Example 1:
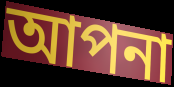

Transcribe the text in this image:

আপনা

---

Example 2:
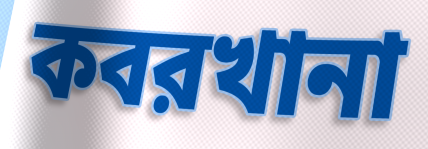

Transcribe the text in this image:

কবরখানা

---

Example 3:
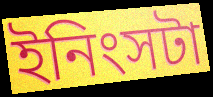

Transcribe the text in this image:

ইনিংসটা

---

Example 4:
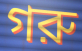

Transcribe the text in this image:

গরু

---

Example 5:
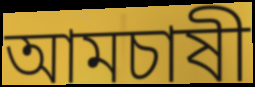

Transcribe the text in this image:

আমচাষী